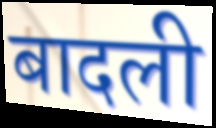
बादली